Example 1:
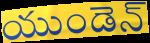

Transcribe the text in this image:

యుండెన్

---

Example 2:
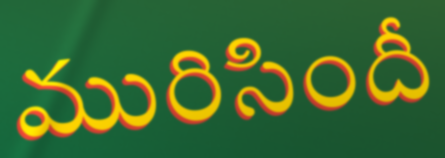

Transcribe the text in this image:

మురిసిందీ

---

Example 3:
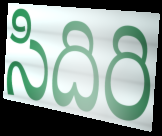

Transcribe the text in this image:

సిదిరి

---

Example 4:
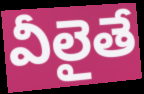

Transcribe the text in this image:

వీలైతే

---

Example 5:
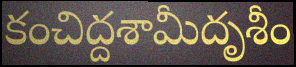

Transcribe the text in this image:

కంచిద్దశామీదృశీం